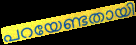
പറയേണ്ടതായി